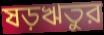
ষড়ঋতুর